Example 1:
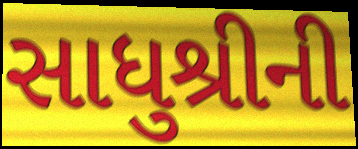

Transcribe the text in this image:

સાધુશ્રીની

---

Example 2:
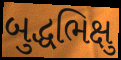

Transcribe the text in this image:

બુદ્ધભિક્ષુ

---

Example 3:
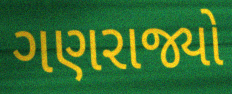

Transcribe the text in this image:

ગણરાજ્યો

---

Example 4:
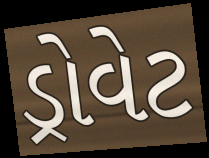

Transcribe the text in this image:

ડ્રોવેટ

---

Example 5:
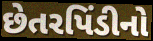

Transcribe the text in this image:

છેતરપિંડીનો